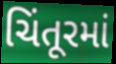
ચિંતૂરમાં